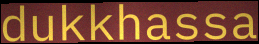
dukkhassa